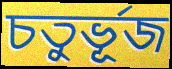
চতুৰ্ভূজ